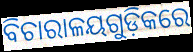
ବିଚାରାଳୟଗୁଡ଼ିକରେ